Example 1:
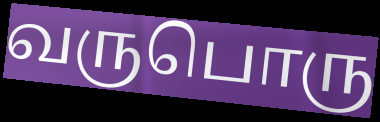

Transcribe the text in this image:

வருபொரு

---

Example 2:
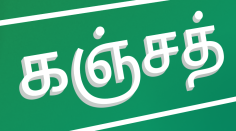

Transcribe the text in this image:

கஞ்சத்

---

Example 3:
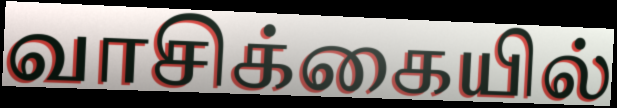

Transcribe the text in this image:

வாசிக்கையில்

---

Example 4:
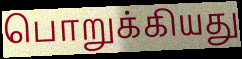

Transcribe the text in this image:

பொறுக்கியது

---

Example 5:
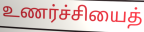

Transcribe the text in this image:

உணர்ச்சியைத்